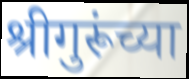
श्रीगुरूंच्या